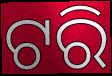
ଟରି